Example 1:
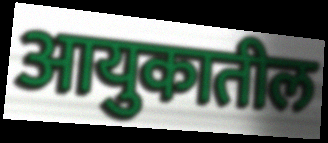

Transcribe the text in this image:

आयुकातील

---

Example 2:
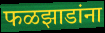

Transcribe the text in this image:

फळझाडांना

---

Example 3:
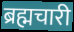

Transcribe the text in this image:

ब्रह्मचारी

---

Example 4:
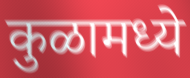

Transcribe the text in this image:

कुळामध्ये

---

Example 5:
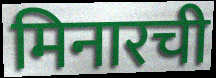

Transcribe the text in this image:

मिनारची